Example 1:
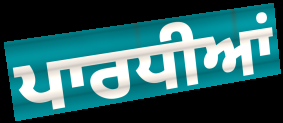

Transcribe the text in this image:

ਪਾਰਧੀਆਂ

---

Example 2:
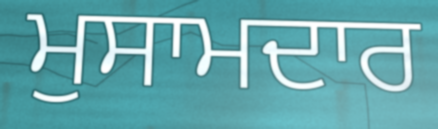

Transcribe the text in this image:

ਮੁਸਾਮਦਾਰ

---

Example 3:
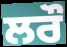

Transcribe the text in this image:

ਲਰੌ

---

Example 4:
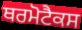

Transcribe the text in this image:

ਥਰਮੋਟੈਕਸ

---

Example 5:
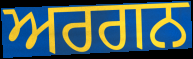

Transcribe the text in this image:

ਅਰਗਨ